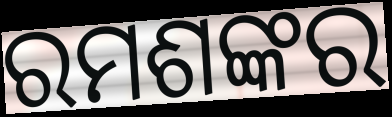
ରମଶଙ୍କର